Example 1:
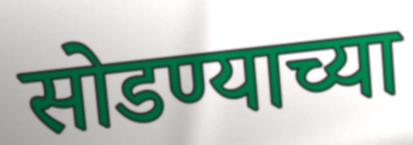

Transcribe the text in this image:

सोडण्याच्या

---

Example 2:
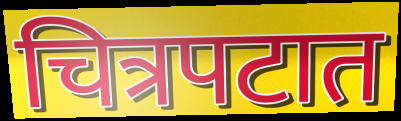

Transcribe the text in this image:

चित्रपटात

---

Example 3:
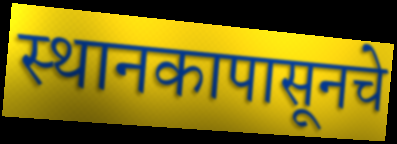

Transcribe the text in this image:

स्थानकापासूनचे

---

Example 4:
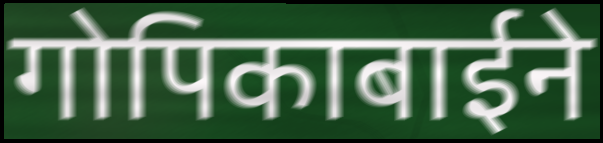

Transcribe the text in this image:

गोपिकाबाईने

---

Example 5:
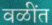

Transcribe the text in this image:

वळींत